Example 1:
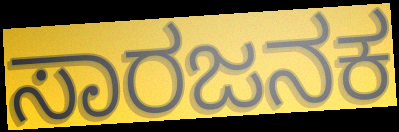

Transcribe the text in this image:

ಸಾರಜನಕ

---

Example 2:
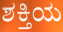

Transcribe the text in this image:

ಶಕ್ತಿಯ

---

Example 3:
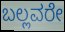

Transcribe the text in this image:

ಬಲ್ಲವರೇ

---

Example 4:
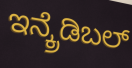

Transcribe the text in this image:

ಇನ್ಕ್ರೆಡಿಬಲ್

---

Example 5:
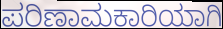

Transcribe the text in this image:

ಪರಿಣಾಮಕಾರಿಯಾಗಿ